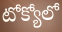
టోక్యోలో